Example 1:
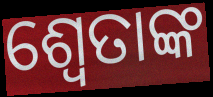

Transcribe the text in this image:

ଶ୍ୱେତାଙ୍କ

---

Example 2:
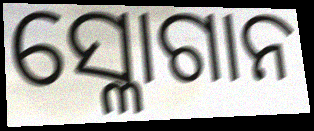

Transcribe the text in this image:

ସ୍ଳୋଗାନ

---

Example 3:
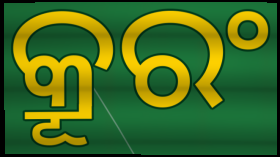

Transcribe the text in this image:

କ୍ରୂରଂ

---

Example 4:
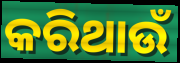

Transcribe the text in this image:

କରିଥାଉଁ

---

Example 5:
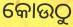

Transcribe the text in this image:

କୋଉଠୁ